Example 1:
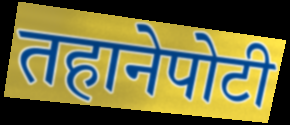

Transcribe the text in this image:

तहानेपोटी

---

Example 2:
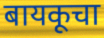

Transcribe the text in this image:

बायकूचा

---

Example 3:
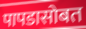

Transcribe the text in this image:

पापडासोबत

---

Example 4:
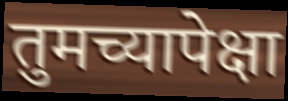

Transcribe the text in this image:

तुमच्यापेक्षा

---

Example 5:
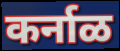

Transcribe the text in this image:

कर्नाळ